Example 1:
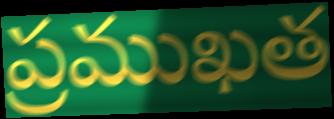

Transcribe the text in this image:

ప్రముఖత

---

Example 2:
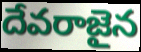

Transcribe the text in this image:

దేవరాజైన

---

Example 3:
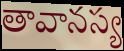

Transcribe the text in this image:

తావానస్య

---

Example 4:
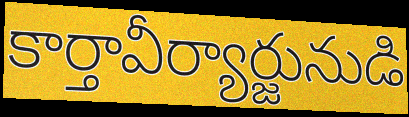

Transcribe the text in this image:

కార్తావీర్యార్జునుడి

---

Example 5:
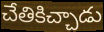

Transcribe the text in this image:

చేతికిచ్చాడు